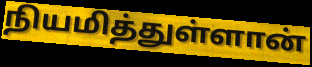
நியமித்துள்ளான்